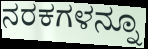
ನರಕಗಳನ್ನೂ